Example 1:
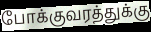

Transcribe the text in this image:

போக்குவரத்துக்கு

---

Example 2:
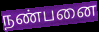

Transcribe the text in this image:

நண்பனை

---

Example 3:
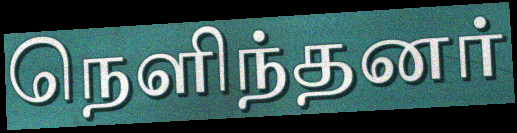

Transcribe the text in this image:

நெளிந்தனர்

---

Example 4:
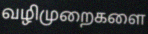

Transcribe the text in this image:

வழிமுறைகளை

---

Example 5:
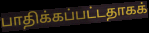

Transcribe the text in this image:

பாதிக்கப்பட்டதாகக்